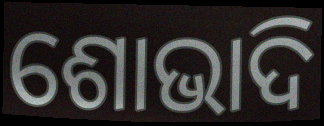
ଶୋଭାଦି